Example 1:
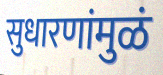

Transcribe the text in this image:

सुधारणांमुळं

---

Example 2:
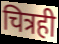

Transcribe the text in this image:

चित्रही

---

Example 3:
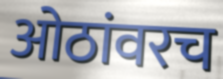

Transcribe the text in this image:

ओठांवरच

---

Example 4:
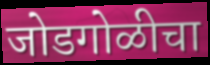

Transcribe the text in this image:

जोडगोळीचा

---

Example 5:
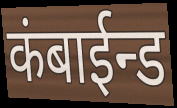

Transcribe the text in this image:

कंबाईन्ड